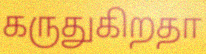
கருதுகிறதா